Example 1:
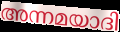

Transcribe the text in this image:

അന്നമയാദി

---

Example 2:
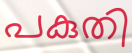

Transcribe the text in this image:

പകുതി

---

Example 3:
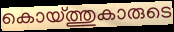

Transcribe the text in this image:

കൊയ്ത്തുകാരുടെ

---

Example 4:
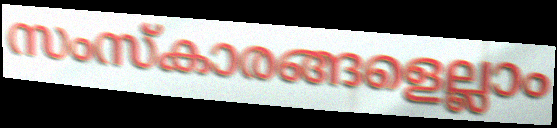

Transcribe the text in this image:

സംസ്കാരങ്ങളെല്ലാം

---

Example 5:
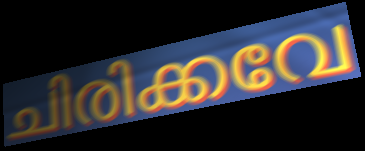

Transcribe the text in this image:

ചിരിക്കവേ